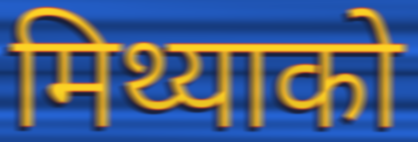
मिथ्याको